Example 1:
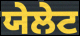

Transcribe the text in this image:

ਯੇਲੇਟ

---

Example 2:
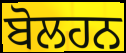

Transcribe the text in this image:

ਬੋਲਹਨ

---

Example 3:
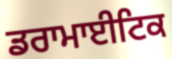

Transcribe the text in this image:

ਡਰਾਮਾਈਟਿਕ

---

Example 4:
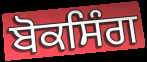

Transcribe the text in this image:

ਬੋਕਸਿੰਗ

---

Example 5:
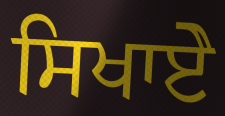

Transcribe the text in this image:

ਸਿਖਾਏੇ